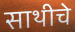
साथीचे